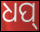
ଧପ୍